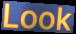
Look